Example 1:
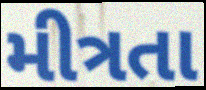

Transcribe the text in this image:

મીત્રતા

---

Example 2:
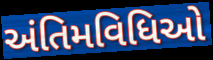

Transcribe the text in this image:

અંતિમવિધિઓ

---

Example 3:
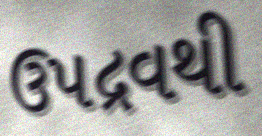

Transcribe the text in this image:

ઉપદ્રવથી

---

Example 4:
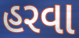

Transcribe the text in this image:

હરવા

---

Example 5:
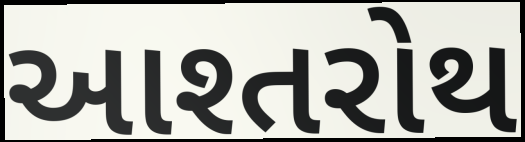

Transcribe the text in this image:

આશ્તરોથ